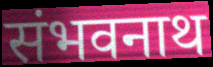
संभवनाथ